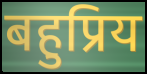
बहुप्रिय